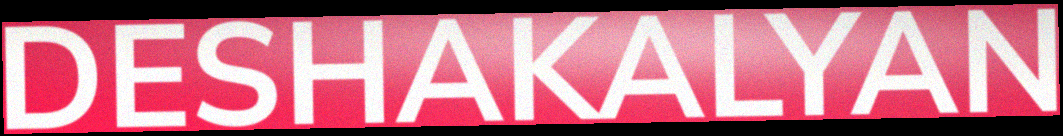
DESHAKALYAN